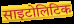
साइटोलिटिक